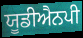
ਯੂਡੀਐਨਪੀ